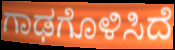
ಗಾಢಗೊಳಿಸಿದೆ